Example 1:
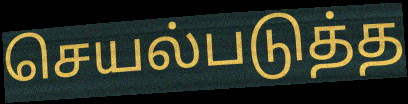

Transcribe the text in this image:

செயல்படுத்த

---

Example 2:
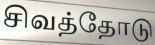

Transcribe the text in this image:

சிவத்தோடு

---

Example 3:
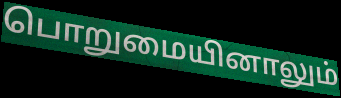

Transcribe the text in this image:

பொறுமையினாலும்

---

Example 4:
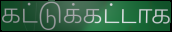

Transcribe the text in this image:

கட்டுக்கட்டாக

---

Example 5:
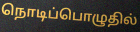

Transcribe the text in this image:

நொடிப்பொழுதில்